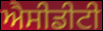
ਐਸੀਡੀਟੀ